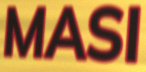
MASI